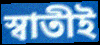
স্বাতীই